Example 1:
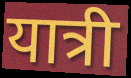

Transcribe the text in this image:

यात्री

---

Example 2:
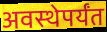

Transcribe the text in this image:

अवस्थेपर्यंत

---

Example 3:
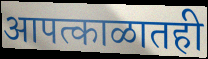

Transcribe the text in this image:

आपत्काळातही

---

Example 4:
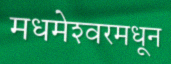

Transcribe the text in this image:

मधमेश्वरमधून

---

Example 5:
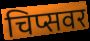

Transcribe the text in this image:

चिप्सवर